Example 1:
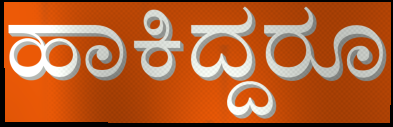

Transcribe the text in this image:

ಹಾಕಿದ್ದರೂ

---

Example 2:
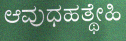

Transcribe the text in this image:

ಆವುಧಹತ್ಥೇಹಿ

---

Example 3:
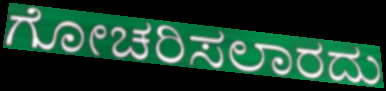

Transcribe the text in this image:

ಗೋಚರಿಸಲಾರದು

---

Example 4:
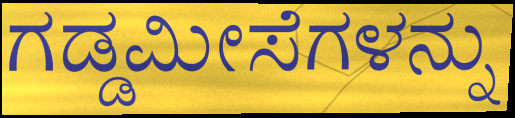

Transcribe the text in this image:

ಗಡ್ಡಮೀಸೆಗಳನ್ನು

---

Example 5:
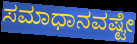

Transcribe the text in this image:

ಸಮಾಧಾನವಷ್ಟೇ